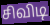
சிவிடி